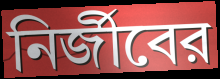
নির্জীবের